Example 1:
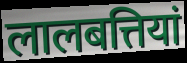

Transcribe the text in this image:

लालबत्तियां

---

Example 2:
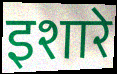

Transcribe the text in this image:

इशारे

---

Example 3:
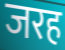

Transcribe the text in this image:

जरह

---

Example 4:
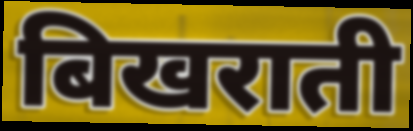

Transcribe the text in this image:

बिखराती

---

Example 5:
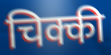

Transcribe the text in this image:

चिक्की